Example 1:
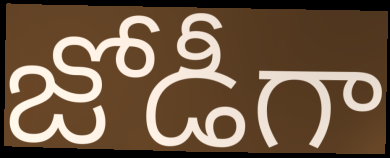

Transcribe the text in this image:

జోడీగా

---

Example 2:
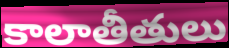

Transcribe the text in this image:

కాలాతీతులు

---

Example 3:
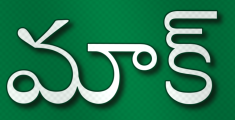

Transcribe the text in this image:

మాక్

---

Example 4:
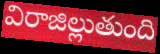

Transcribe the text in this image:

విరాజిల్లుతుంది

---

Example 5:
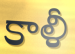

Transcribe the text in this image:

కాళీ